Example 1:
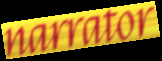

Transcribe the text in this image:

narrator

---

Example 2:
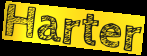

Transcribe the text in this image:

Harter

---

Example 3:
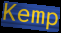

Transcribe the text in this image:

Kemp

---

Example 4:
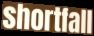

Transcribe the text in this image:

shortfall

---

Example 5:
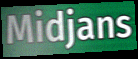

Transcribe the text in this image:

Midjans